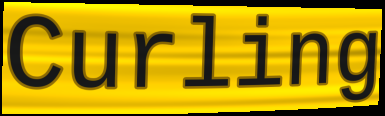
Curling